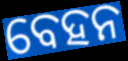
ବେହନ